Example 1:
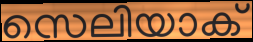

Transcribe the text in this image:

സെലിയാക്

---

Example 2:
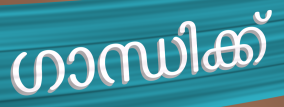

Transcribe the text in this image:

ഗാന്ധിക്ക്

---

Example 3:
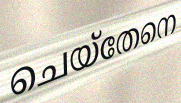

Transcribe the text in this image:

ചെയ്തേനെ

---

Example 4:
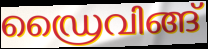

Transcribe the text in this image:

ഡ്രൈവിങ്ങ്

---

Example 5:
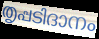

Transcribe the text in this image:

തൃപ്പടിദാനം